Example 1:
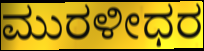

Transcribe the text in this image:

ಮುರಳೀಧರ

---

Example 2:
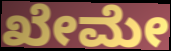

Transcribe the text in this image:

ಖೇಮೇ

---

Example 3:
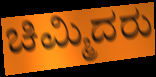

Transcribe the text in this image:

ಚಿಮ್ಮಿದರು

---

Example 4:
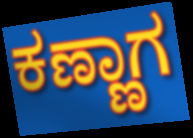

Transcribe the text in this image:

ಕಣ್ಣಾಗ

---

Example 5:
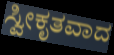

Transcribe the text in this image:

ಸ್ವೀಕೃತವಾದ